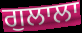
ਗੁਲਾਲਾ